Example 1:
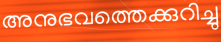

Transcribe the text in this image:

അനുഭവത്തെക്കുറിച്ചു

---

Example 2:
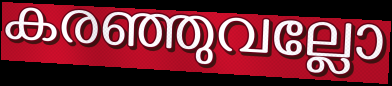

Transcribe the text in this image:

കരഞ്ഞുവല്ലോ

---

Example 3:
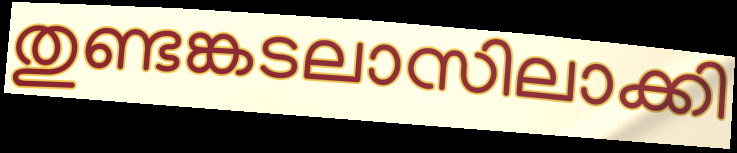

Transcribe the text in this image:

തുണ്ടങ്കടലാസിലാക്കി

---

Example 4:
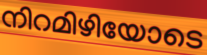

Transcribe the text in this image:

നിറമിഴിയോടെ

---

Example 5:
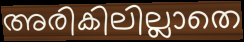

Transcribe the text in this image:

അരികിലില്ലാതെ